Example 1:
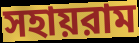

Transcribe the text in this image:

সহায়রাম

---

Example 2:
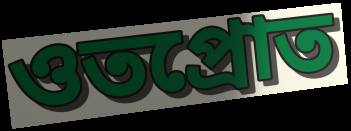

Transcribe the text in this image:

ওতপ্রোত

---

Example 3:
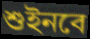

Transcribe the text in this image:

শুইনবে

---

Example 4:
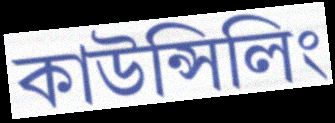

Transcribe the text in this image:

কাউন্সিলিং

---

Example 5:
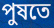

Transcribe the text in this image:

পুষতে